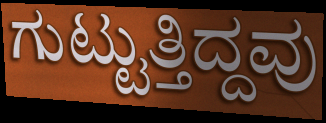
ಗುಟ್ಟುತ್ತಿದ್ದವು